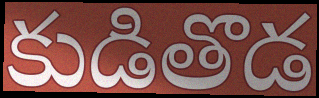
కుడితొడ